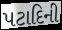
પટાદિની